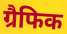
ग्रैफिक